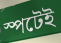
স্পটেই